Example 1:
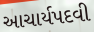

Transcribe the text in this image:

આચાર્યપદવી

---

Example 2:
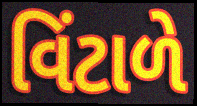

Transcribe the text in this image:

વિંટાળે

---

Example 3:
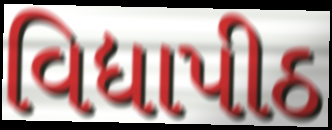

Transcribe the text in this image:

વિદ્યાપીઠ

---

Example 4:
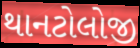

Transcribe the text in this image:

થાનટોલોજી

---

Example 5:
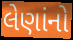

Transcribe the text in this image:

લેણાંનો